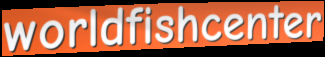
worldfishcenter